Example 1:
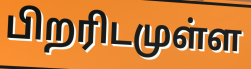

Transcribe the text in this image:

பிறரிடமுள்ள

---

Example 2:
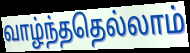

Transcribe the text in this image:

வாழ்ந்ததெல்லாம்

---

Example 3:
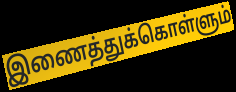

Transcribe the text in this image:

இணைத்துக்கொள்ளும்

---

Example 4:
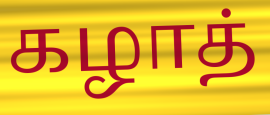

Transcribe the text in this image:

கழாத்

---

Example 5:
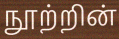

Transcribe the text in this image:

நூற்றின்